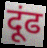
दूंढ